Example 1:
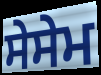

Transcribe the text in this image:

ਸੇਸੇਮ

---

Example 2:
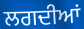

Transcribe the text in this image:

ਲਗਦੀਆਂ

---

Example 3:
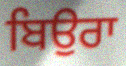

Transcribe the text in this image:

ਬਿਉਰਾ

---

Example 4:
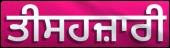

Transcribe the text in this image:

ਤੀਸਹਜ਼ਾਰੀ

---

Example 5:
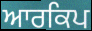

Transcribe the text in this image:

ਆਰਕਿਪ